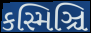
કસ્મિઞ્ચિ